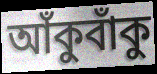
আঁকুবাঁকু